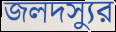
জলদস্যুর